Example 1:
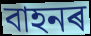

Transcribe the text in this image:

বাহনৰ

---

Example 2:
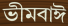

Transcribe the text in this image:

ভীমবাঈ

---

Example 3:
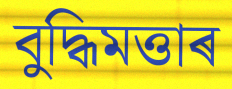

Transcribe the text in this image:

বুদ্ধিমত্তাৰ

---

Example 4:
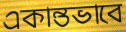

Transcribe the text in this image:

একান্তভাবে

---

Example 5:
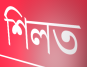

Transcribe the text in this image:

শিলত